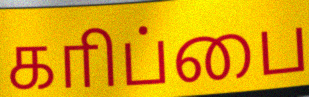
கரிப்பை